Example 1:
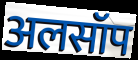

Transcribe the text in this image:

अलसॉप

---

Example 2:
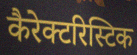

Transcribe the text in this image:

कैरेक्टरिस्टिक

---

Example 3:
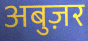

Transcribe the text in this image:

अबुज़र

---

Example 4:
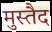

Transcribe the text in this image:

मुस्‍तैद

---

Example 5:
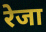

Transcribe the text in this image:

रेजा